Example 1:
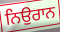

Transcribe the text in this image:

ਨਿਉਰਾਨ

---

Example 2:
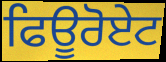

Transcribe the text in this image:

ਫਿਊਰੋਏਟ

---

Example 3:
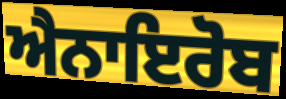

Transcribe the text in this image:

ਐਨਾਇਰੋਬ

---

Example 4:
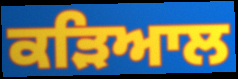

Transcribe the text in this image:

ਕੜਿਆਲ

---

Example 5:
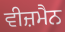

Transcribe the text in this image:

ਵੀਜ਼ਮੈਨ